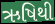
ઋષિથી